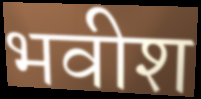
भवीश